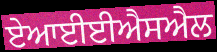
ਏਆਈਈਐਸਐਲ